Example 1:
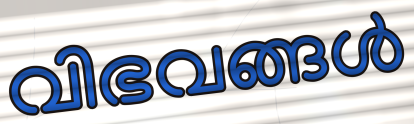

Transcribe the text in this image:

വിഭവങ്ങൾ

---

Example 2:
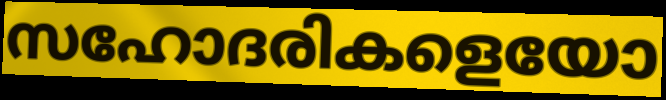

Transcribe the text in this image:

സഹോദരികളെയോ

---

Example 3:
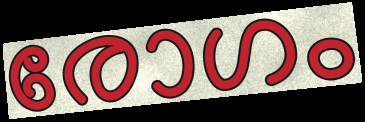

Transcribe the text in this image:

രോഗം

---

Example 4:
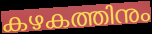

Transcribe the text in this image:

കഴകത്തിനും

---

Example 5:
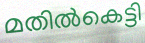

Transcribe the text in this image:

മതിൽകെട്ടി